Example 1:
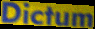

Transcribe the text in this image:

Dictum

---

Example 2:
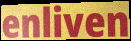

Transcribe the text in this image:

enliven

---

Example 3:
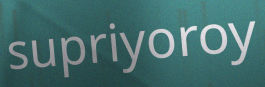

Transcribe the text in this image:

supriyoroy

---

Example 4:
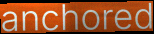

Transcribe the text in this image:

anchored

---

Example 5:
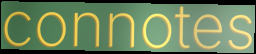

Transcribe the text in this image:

connotes